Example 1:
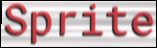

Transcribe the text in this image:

Sprite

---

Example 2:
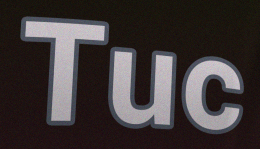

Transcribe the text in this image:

Tuc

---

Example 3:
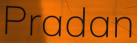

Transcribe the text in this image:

Pradan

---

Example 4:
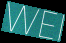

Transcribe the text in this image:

WEI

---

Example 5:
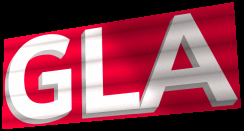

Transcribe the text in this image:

GLA